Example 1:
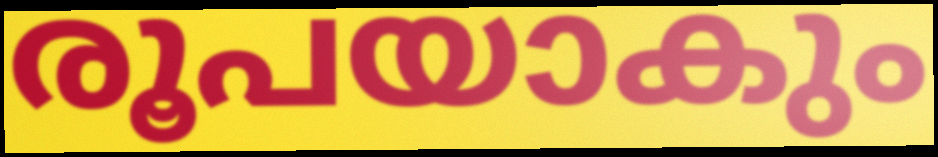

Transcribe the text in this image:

രൂപയാകും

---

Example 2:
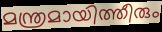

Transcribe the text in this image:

മന്ത്രമായിത്തീരും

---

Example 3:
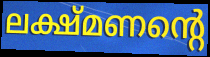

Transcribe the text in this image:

ലക്ഷ്മണന്റെ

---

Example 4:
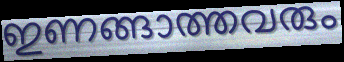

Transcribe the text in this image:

ഇണങ്ങാത്തവരും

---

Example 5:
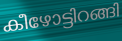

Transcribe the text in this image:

കീഴോട്ടിറങ്ങി